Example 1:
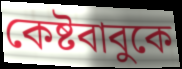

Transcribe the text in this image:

কেষ্টবাবুকে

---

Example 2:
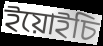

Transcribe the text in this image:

ইয়োইচি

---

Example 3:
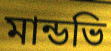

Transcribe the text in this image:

মান্ডভি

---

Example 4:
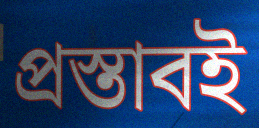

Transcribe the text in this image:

প্রস্তাবই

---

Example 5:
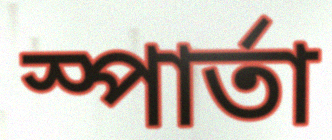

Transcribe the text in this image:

স্পার্তা